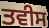
ਤਵੀਸ